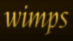
wimps